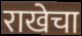
राखेचा